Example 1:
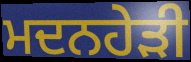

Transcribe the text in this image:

ਮਦਨਹੇੜੀ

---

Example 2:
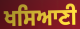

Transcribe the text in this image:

ਖਸਿਆਣੀ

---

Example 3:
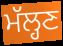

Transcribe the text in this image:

ਮੱਲ੍ਹਣ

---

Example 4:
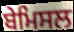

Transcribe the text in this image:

ਬੇਮਿਸਲ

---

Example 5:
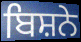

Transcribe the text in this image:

ਬਿਸ਼ਨੇ